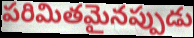
పరిమితమైనప్పుడు